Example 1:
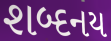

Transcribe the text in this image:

શબ્દનય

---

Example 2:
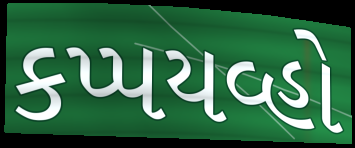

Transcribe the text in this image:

કપ્પયવ્હો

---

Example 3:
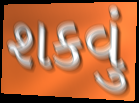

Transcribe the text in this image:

શકવું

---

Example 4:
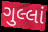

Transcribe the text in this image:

ગુલ્લાં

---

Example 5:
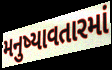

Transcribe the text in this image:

મનુષ્યાવતારમાં